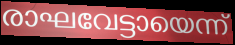
രാഘവേട്ടായെന്ന്